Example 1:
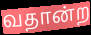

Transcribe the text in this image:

வதான்ற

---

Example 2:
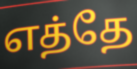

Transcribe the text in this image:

எத்தே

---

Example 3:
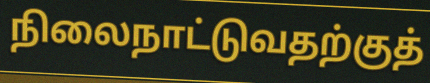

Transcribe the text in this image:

நிலைநாட்டுவதற்குத்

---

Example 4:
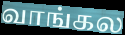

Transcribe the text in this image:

வாங்கல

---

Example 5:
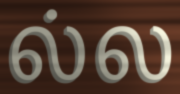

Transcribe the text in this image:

ல்ல